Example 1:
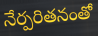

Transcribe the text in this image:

నేర్పరితనంతో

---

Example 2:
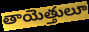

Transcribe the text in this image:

తాయెత్తులూ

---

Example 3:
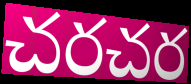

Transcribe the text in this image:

చరచర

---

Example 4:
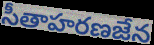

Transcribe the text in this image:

సీతాహరణజేన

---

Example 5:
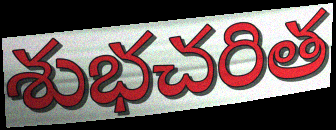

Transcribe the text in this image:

శుభచరిత